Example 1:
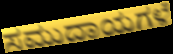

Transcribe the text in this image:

ಸಮುದಾಯಗಳೆ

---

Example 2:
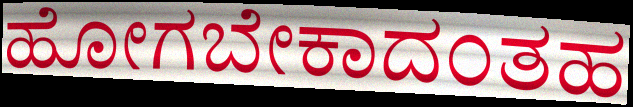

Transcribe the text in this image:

ಹೋಗಬೇಕಾದಂತಹ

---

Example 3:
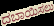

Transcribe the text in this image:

ದಬಾಯಿಸಲು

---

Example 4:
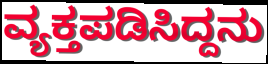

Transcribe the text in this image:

ವ್ಯಕ್ತಪಡಿಸಿದ್ದನು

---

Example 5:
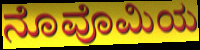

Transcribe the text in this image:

ನೊವೊಮಿಯ